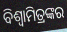
ବିଶ୍ବାମିତ୍ରଙ୍କର